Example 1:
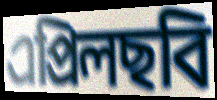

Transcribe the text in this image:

এপ্রিলছবি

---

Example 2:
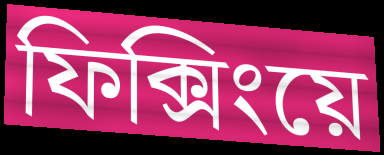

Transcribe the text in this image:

ফিক্সিংয়ে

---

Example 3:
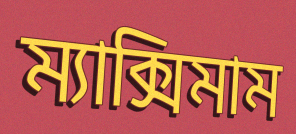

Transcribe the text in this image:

ম্যাক্সিমাম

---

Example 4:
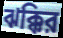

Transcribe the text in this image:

ঝক্কির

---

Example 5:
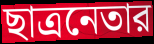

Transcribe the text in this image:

ছাত্রনেতার